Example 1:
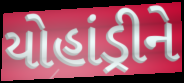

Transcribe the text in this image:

યોહાંડ્રીને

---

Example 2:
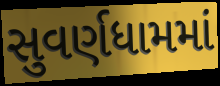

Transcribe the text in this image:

સુવર્ણધામમાં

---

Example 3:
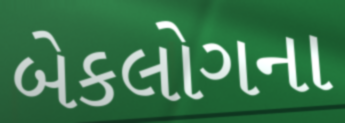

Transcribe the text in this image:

બેકલોગના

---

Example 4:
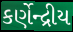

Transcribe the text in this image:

કર્ણેન્દ્રીય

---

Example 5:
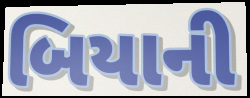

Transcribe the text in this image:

બિયાની